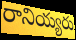
రానియ్యరు